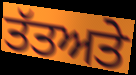
ਤੱਤਅਤੇ